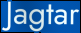
Jagtar